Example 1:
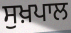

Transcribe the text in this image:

ਸੁਖ਼ਪਾਲ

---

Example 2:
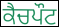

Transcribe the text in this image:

ਕੈਚਪੌਟ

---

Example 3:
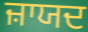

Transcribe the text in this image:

ਜ਼ਾਯਦ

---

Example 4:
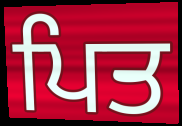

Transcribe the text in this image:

ਪਿਤ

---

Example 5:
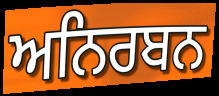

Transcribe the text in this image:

ਅਨਿਰਬਨ